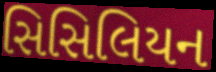
સિસિલિયન